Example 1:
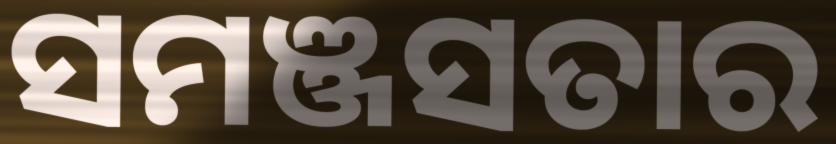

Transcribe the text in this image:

ସମଞ୍ଜସତାର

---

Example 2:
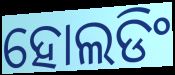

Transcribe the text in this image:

ହୋଲଡିଂ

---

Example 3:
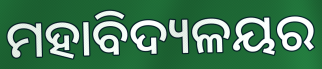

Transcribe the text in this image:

ମହାବିଦ୍ୟଳୟର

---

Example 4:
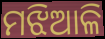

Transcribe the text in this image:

ମଝିଆଳି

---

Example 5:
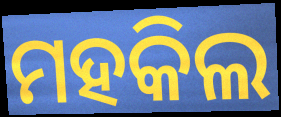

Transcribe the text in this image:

ମହକିଲ